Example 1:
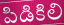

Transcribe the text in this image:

పిడికిలి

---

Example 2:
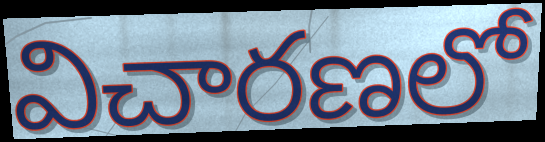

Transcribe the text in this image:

విచారణలో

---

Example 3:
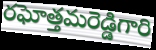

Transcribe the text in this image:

రఘోత్తమరెడ్డిగారి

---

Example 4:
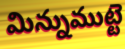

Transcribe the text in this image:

మిన్నుముట్టె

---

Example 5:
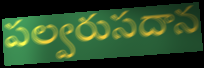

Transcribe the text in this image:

పల్వరుసదాన